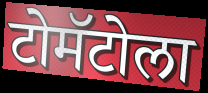
टोमॅटोला